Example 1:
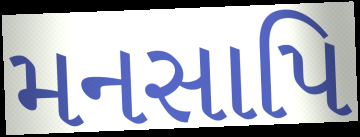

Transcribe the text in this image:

મનસાપિ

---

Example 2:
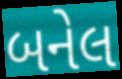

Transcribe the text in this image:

બનેલ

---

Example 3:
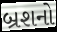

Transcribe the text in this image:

બ્રશનો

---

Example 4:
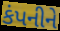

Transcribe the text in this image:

કંપનીને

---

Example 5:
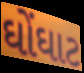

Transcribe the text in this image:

ઘોંઘાટ